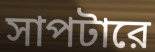
সাপটারে